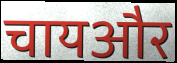
चायऔर